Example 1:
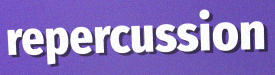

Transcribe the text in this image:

repercussion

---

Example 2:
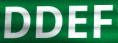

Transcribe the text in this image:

DDEF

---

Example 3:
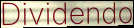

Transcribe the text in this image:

Dividendo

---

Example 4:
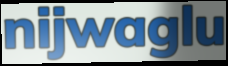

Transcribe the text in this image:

nijwaglu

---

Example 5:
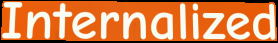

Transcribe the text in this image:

Internalized